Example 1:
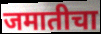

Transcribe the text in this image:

जमातीचा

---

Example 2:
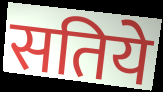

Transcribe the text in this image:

सतिये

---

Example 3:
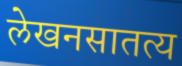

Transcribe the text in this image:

लेखनसातत्य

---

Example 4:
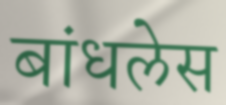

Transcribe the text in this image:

बांधलेस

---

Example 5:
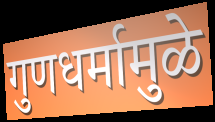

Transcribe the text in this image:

गुणधर्मामुळे